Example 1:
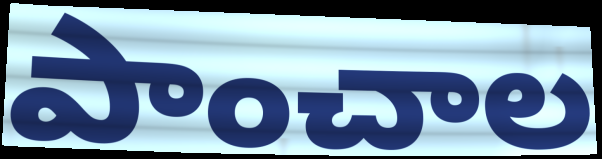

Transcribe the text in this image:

పాంచాల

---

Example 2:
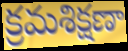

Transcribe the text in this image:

క్రమశిక్షణా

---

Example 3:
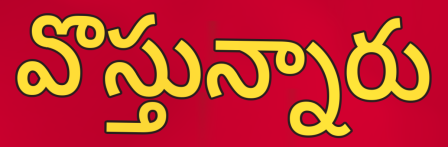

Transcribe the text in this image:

వొస్తున్నారు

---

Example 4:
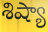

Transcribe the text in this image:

శిష్యా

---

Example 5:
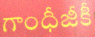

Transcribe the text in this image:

గాంధీజీకీ